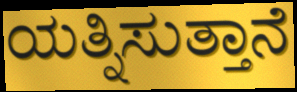
ಯತ್ನಿಸುತ್ತಾನೆ